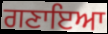
ਗਣਾਇਆ